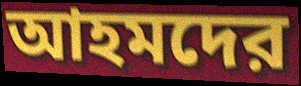
আহমদের